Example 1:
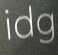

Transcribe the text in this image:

idg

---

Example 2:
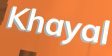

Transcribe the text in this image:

Khayal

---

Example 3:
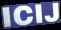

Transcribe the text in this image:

ICIJ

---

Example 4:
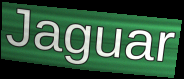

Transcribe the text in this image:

Jaguar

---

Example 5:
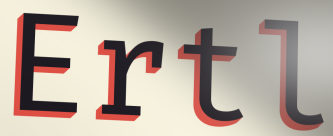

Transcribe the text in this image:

Ertl